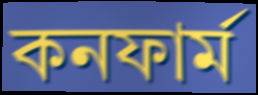
কনফার্ম